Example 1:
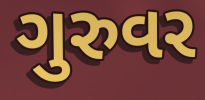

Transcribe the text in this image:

ગુરુવર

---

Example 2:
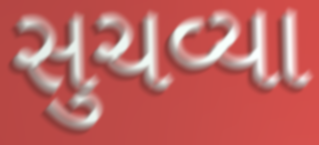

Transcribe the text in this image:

સુચવ્યા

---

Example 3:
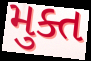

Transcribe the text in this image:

મુક્ત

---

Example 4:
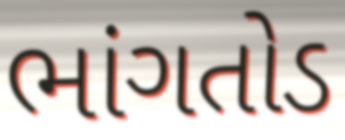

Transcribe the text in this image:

ભાંગતોડ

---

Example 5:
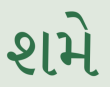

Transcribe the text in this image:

શમે